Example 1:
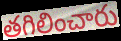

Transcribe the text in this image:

తగిలించారు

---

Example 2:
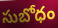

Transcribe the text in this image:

సుబోధం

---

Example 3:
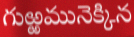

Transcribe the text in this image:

గుఱ్ఱమునెక్కిన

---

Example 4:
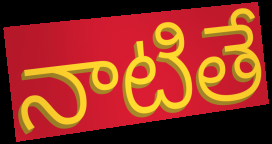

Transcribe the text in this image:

నాటితే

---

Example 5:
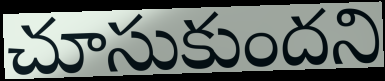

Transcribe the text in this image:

చూసుకుందని